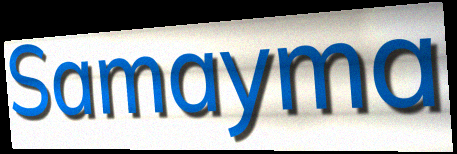
Samayma